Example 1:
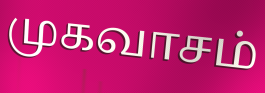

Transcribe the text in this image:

முகவாசம்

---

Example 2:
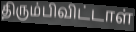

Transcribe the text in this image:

திரும்பிவிட்டாள்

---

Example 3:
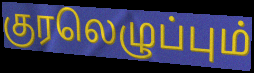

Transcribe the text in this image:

குரலெழுப்பும்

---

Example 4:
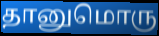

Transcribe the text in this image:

தானுமொரு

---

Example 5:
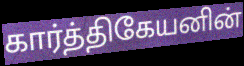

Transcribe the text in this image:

கார்த்திகேயனின்